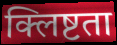
क्लिष्टता